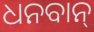
ଧନବାନ୍